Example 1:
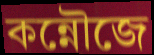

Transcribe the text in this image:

কন্নৌজে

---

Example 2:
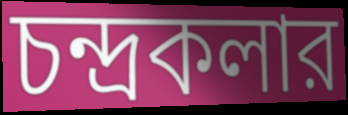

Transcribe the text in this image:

চন্দ্রকলার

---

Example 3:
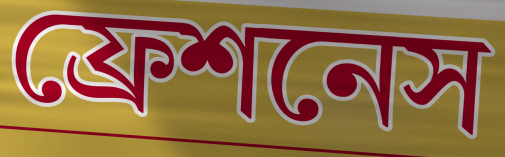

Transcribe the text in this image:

ফ্রেশনেস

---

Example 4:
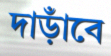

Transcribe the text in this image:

দাড়াঁবে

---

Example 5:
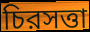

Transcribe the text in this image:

চিরসত্তা